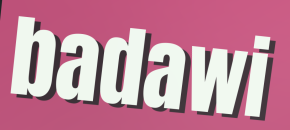
badawi